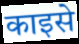
काइसे